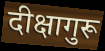
दीक्षागुरू